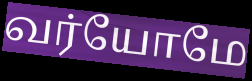
வர்யோமே